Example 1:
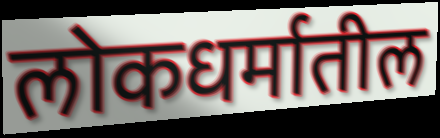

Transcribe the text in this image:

लोकधर्मातील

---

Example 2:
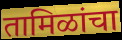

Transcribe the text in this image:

तामिळांचा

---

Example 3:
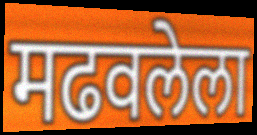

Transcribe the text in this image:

मढवलेला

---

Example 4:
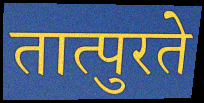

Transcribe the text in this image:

तात्पुरते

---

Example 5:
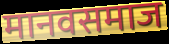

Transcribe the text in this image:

मानवसमाज